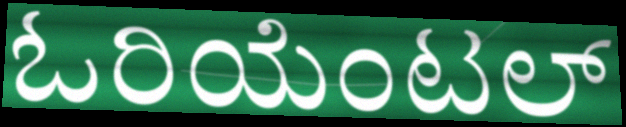
ಓರಿಯೆಂಟಲ್